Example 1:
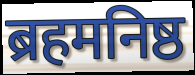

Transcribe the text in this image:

ब्रहमनिष्ठ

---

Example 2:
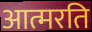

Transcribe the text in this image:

आत्मरति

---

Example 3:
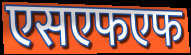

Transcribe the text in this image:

एसएफएफ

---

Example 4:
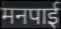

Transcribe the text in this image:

मनपाई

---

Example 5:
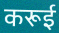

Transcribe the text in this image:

करूई